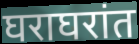
घराघरांत